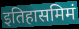
इतिहासमिमं